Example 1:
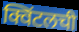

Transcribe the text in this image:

क्विंटलची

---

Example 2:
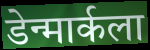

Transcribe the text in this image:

डेन्मार्कला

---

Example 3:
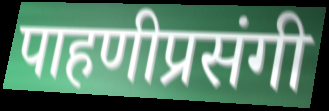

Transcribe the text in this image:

पाहणीप्रसंगी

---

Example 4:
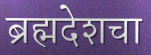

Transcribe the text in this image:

ब्रह्मदेशचा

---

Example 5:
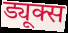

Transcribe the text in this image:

ड्यूक्‍स